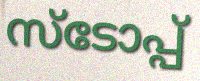
സ്ടോപ്പ്